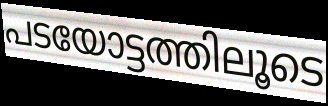
പടയോട്ടത്തിലൂടെ